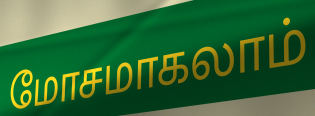
மோசமாகலாம்